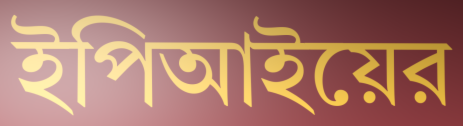
ইপিআইয়ের